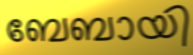
ബേബായി